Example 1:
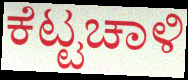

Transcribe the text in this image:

ಕೆಟ್ಟಚಾಳಿ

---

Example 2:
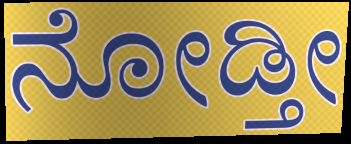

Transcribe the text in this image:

ನೋಡ್ತೀ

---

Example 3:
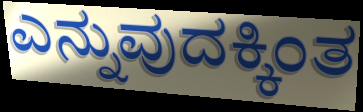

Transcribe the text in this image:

ಎನ್ನುವುದಕ್ಕಿಂತ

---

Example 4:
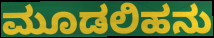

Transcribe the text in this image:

ಮೂಡಲಿಹನು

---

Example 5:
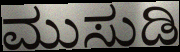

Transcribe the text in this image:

ಮುಸುಡಿ